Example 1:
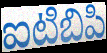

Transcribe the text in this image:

ఐటిబిపి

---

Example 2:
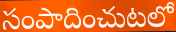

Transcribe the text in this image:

సంపాదించుటలో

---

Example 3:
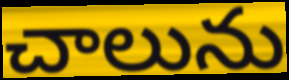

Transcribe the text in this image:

చాలును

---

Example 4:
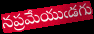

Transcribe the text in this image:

నప్రమేయుఁడగు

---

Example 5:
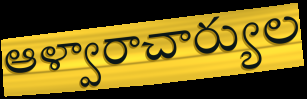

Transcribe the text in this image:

ఆళ్వారాచార్యుల